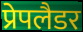
प्रेपलैडर